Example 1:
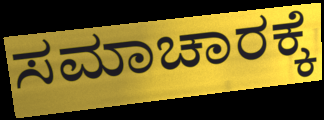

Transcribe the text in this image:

ಸಮಾಚಾರಕ್ಕೆ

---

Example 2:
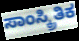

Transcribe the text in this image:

ಸಾಂಸ್ಕ್ರಿತಿಕ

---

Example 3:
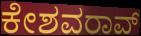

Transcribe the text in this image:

ಕೇಶವರಾವ್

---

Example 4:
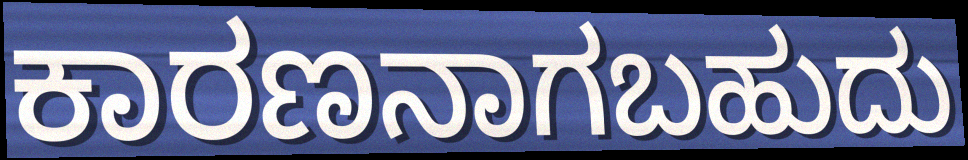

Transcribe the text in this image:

ಕಾರಣನಾಗಬಹುದು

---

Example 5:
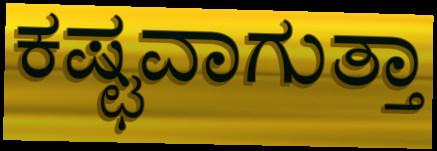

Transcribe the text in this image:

ಕಷ್ಟವಾಗುತ್ತಾ